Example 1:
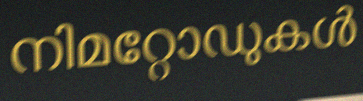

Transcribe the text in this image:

നിമറ്റോഡുകൾ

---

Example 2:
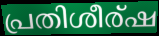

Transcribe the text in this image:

പ്രതിശീര്ഷ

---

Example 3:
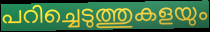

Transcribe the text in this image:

പറിച്ചെടുത്തുകളയും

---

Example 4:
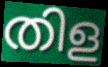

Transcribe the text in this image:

തിള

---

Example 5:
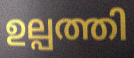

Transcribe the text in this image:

ഉല്പത്തി